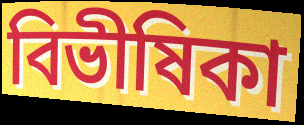
বিভীষিকা